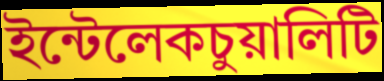
ইন্টেলেকচুয়ালিটি